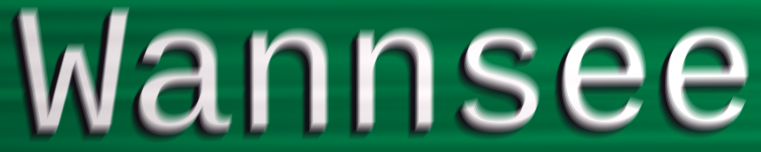
Wannsee